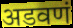
अडवणं